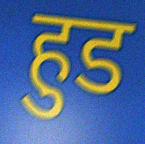
हुड